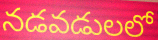
నడవడులలో